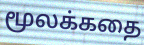
மூலக்கதை